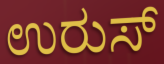
ಉರುಸ್